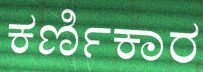
ಕರ್ಣಿಕಾರ